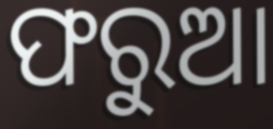
ଫରୁଆ